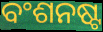
ବଂଶନଷ୍ଟ